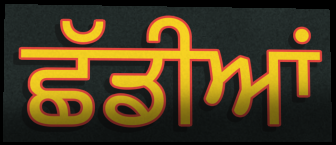
ਛੱਡੀਆਂ